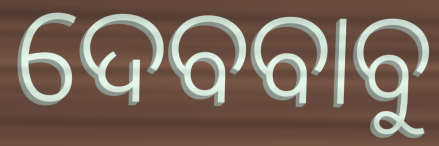
ଦେବବାବୁ